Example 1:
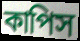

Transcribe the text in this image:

কাপিস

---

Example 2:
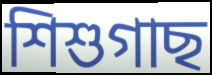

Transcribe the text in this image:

শিশুগাছ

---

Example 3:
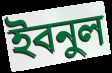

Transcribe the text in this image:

ইবনুল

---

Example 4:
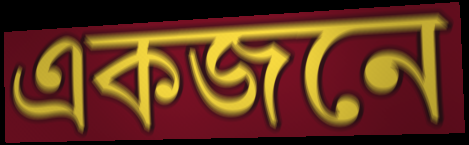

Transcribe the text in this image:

একজনে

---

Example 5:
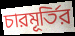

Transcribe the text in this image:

চারমূর্তির